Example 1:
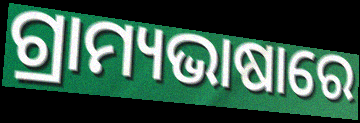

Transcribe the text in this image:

ଗ୍ରାମ୍ୟଭାଷାରେ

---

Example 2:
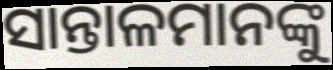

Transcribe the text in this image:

ସାନ୍ତାଳମାନଙ୍କୁ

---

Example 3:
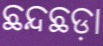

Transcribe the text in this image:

ଛନ୍ଦଛଡ଼ା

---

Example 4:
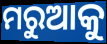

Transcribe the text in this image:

ମରୁଆକୁ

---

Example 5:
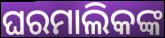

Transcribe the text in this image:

ଘରମାଲିକଙ୍କ